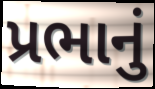
પ્રભાનું